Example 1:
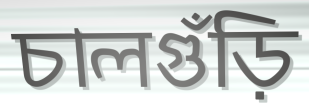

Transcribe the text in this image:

চালগুঁড়ি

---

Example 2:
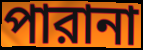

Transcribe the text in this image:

পারানা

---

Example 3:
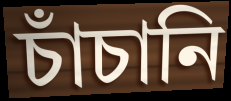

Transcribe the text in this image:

চাঁচানি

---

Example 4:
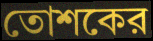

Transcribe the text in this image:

তোশকের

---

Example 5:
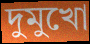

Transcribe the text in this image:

দুমুখো